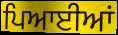
ਪਿਆਈਆਂ